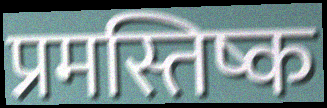
प्रमस्तिष्क